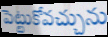
పెట్టుకోవచ్చును